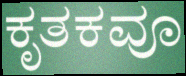
ಕೃತಕವೂ